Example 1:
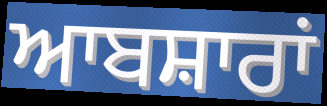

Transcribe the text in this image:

ਆਬਸ਼ਾਰਾਂ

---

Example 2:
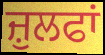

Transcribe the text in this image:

ਜ਼ੁਲਫਾਂ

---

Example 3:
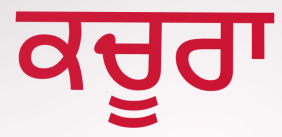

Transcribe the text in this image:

ਕਚੂਰਾ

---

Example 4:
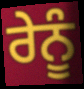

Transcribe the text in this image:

ਰੇਨੂੰ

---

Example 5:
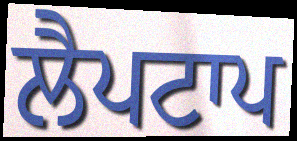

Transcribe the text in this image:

ਲੈਪਟਾਪ